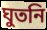
ঘুতনি